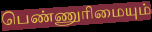
பெண்ணுரிமையும்